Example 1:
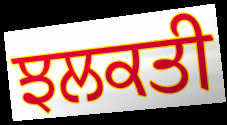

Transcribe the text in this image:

ਝਲਕਤੀ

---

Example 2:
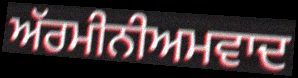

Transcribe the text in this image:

ਅੱਰਮੀਨੀਅਮਵਾਦ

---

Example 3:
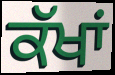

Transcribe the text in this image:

ਕੱਖਾਂ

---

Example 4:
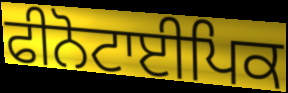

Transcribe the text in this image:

ਫੀਨੋਟਾਈਪਿਕ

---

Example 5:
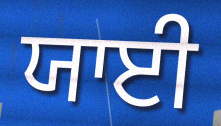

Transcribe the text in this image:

ਯਾਈ